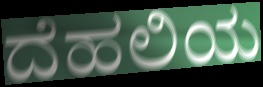
ದೆಹಲಿಯ